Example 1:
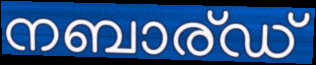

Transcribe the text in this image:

നബാര്ഡ്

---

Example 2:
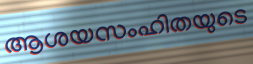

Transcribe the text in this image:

ആശയസംഹിതയുടെ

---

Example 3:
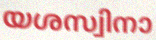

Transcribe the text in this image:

യശസ്വിനാ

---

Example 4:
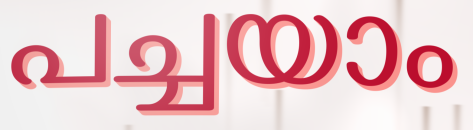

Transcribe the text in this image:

പച്ചയാം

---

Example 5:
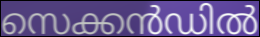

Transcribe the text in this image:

സെക്കൻഡിൽ